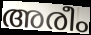
അരീം